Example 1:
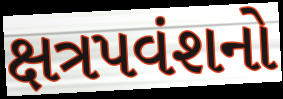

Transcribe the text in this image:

ક્ષત્રપવંશનો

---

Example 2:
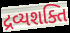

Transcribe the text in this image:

દ્રવ્યશક્તિ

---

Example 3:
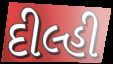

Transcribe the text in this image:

દીલ્હી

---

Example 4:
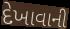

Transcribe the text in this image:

દેખાવાની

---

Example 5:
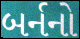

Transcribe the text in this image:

બર્નનો